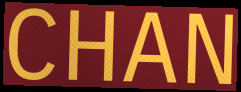
CHAN